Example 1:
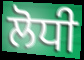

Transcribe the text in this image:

ਲੋਧੀ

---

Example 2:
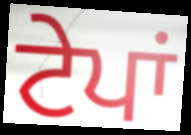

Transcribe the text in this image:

ਟੇਪਾਂ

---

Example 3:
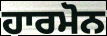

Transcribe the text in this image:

ਹਾਰਮੋਨ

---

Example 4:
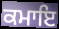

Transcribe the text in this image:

ਕਮਾਇ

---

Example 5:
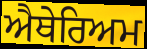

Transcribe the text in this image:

ਐਥੇਰਿਅਮ